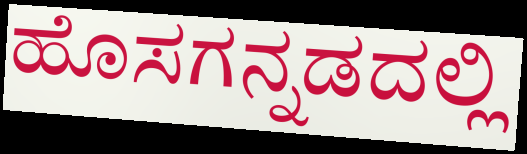
ಹೊಸಗನ್ನಡದಲ್ಲಿ